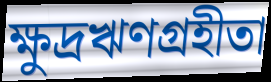
ক্ষুদ্রঋণগ্রহীতা